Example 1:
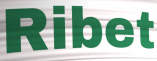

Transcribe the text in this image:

Ribet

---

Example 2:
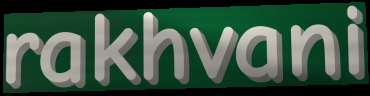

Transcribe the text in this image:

rakhvani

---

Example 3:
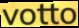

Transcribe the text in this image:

votto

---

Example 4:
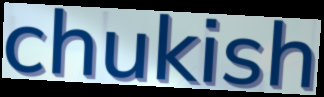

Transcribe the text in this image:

chukish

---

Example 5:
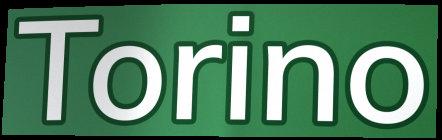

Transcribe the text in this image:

Torino